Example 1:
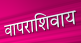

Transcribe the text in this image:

वापराशिवाय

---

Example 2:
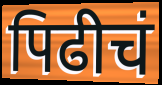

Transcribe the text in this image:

पिढीचं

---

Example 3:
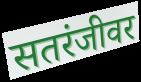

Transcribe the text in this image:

सतरंजीवर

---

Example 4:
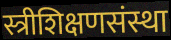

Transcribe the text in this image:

स्त्रीशिक्षणसंस्था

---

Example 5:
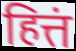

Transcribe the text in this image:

हित्तं